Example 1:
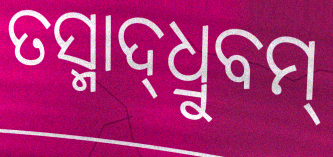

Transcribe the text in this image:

ତସ୍ମାଦ୍‌ଧ୍ରୁବମ୍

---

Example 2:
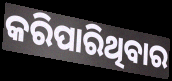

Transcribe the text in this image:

କରିପାରିଥିବାର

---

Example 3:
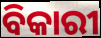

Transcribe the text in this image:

ବିକାରୀ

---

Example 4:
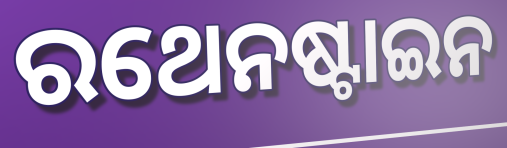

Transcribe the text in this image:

ରଥେନଷ୍ଟାଇନ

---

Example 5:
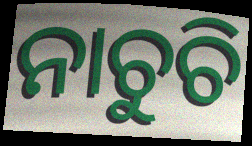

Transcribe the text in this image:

ନାଚୁଚି